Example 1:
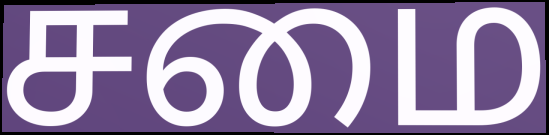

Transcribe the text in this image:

சமை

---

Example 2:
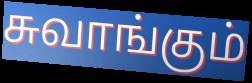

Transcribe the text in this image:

சுவாங்கும்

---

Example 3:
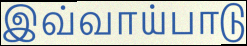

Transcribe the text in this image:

இவ்வாய்பாடு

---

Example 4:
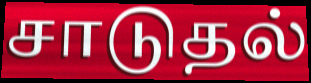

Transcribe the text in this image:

சாடுதல்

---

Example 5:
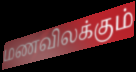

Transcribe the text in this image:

மணவிலக்கும்